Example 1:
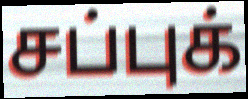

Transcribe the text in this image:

சப்புக்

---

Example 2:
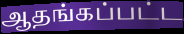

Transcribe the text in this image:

ஆதங்கப்பட்ட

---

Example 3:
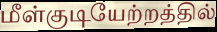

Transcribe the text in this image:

மீள்குடியேற்றத்தில்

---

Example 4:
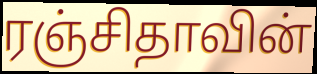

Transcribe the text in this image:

ரஞ்சிதாவின்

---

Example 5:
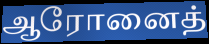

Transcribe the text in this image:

ஆரோனைத்